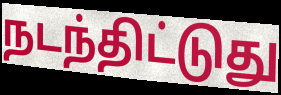
நடந்திட்டுது